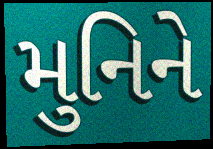
મુનિને